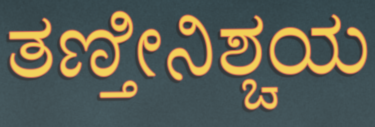
ತಣ್ತೀನಿಶ್ಚಯ